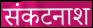
संकटनाश